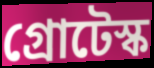
গ্রোটেস্ক